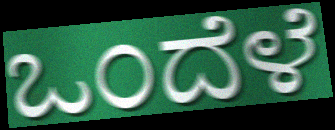
ಒಂದೆಳೆ